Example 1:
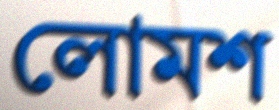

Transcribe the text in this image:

লোমশ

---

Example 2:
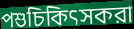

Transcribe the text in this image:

পশুচিকিৎসকরা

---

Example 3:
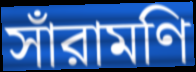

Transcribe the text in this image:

সাঁরামণি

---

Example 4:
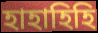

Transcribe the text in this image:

হাহাহিহি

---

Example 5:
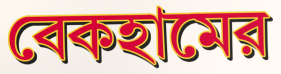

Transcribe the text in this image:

বেকহামের